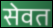
सेवत